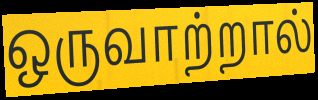
ஒருவாற்றால்